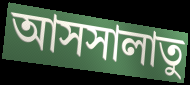
আসসালাতু